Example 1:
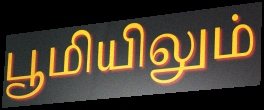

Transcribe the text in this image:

பூமியிலும்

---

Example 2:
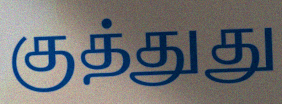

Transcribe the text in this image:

குத்துது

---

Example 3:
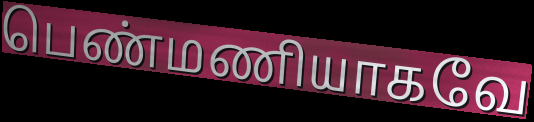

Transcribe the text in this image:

பெண்மணியாகவே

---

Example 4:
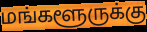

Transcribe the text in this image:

மங்களூருக்கு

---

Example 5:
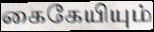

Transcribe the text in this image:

கைகேயியும்